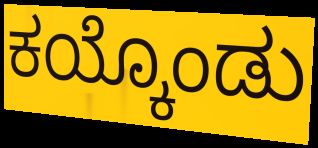
ಕಯ್ಕೊಂಡು